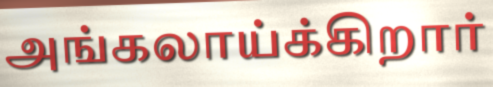
அங்கலாய்க்கிறார்